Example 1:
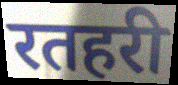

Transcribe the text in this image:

रतहरी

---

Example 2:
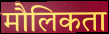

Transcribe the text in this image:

मौलिकता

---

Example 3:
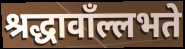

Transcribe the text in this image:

श्रद्धावाँल्लभते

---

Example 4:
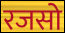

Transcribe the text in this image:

रजसो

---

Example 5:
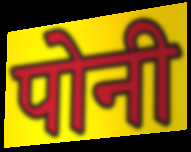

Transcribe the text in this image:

पोनी